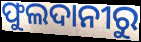
ଫୁଲଦାନୀରୁ